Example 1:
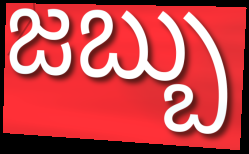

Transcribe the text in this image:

జబ్బు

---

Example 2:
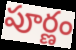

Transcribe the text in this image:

పూర్ణం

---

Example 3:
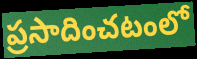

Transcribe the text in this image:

ప్రసాదించటంలో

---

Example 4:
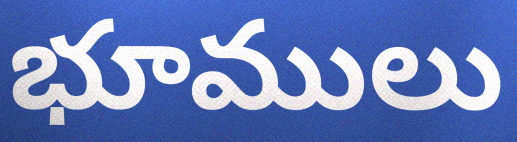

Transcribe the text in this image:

భూములు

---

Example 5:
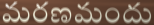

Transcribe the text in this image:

మరణమందు